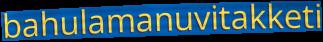
bahulamanuvitakketi